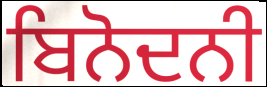
ਬਿਨੋਦਨੀ